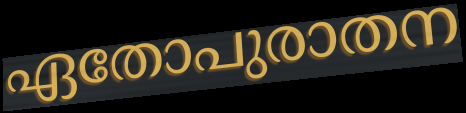
ഏതോപുരാതന